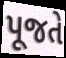
પૂજતે